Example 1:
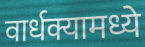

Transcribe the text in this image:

वार्धक्यामध्ये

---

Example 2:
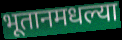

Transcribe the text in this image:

भूतानमधल्या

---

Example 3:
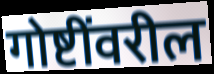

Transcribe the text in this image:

गोष्टींवरील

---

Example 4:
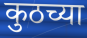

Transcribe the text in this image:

कुठच्या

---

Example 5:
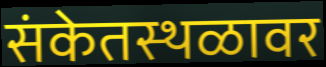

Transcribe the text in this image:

संकेतस्थळावर